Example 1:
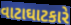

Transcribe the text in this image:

વાટાઘાટકારે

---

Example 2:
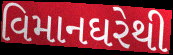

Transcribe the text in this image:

વિમાનઘરેથી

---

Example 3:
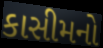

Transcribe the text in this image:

કાસીમનો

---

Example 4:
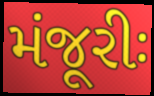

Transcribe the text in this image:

મંજૂરીઃ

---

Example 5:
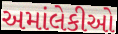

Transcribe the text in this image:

અમાંલેકીઓ